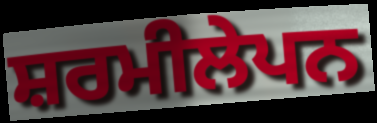
ਸ਼ਰਮੀਲੇਪਨ